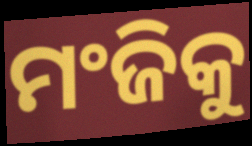
ମଂଜିକୁ